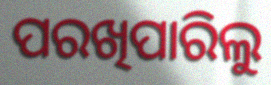
ପରଖିପାରିଲୁ